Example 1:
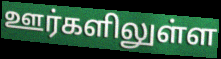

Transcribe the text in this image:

ஊர்களிலுள்ள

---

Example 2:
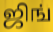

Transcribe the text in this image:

ஜிங்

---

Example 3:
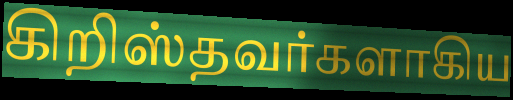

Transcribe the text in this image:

கிறிஸ்தவர்களாகிய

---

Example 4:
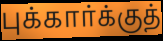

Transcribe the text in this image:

புக்கார்க்குத்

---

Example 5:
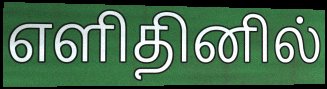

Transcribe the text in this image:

எளிதினில்